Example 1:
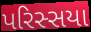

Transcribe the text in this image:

પરિસ્સયા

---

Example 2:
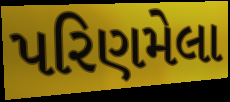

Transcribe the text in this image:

પરિણમેલા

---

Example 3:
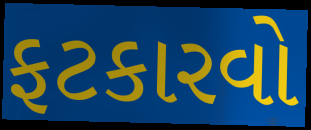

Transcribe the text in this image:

ફટકારવો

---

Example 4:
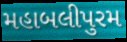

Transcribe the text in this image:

મહાબલીપુરમ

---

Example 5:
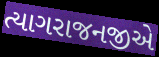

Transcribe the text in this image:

ત્યાગરાજનજીએ